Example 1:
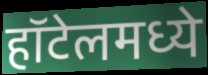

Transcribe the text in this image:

हॉटेलमध्ये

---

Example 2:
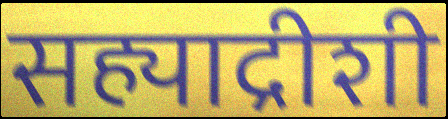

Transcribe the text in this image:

सह्याद्रीशी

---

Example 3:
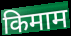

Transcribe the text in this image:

किमाम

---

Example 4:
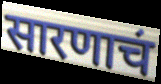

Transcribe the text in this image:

सारणाचं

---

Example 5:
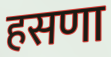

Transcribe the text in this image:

हसणा